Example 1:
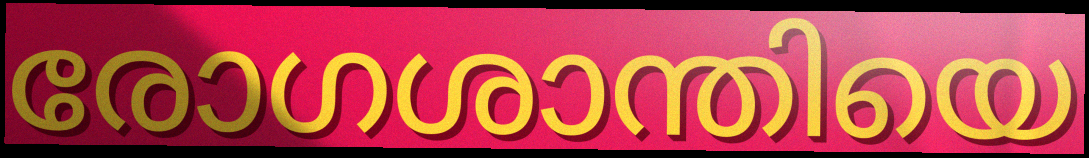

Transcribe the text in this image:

രോഗശാന്തിയെ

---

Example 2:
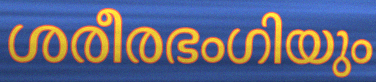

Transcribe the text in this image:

ശരീരഭംഗിയും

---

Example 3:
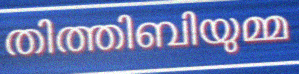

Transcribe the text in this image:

തിത്തിബിയുമ്മ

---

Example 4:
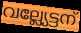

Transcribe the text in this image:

വല്ല്യേട്ടന്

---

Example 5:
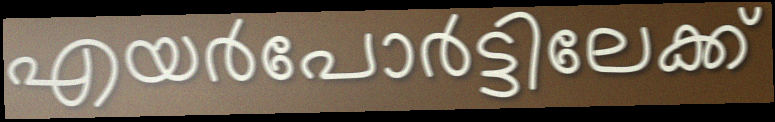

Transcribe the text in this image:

എയർപോർട്ടിലേക്ക്